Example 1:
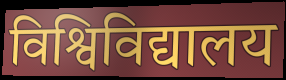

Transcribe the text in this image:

विश्विविद्यालय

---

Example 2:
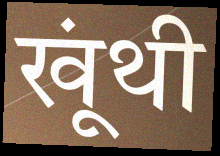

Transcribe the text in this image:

खूंथी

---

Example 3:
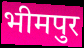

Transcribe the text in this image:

भीमपुर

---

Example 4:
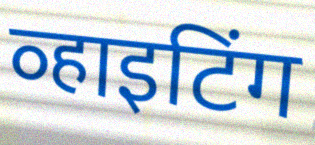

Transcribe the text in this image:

व्हाइटिंग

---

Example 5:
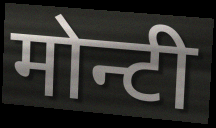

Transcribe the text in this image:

मोन्टी